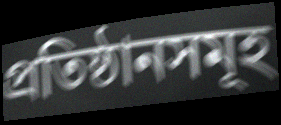
প্ৰতিষ্ঠানসমূহ